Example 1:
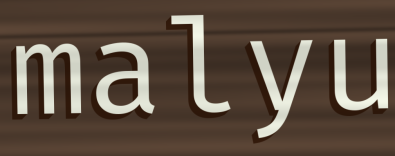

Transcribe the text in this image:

malyu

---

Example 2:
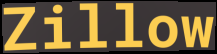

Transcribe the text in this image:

Zillow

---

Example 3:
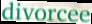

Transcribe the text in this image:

divorcee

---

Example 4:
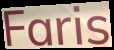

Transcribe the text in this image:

Faris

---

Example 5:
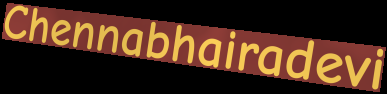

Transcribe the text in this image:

Chennabhairadevi